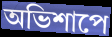
অভিশাপে